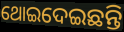
ଥୋଇଦେଇଛନ୍ତି